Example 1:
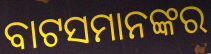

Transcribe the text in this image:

ବାଟସମାନଙ୍କର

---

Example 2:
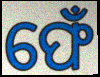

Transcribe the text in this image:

ଫେଁ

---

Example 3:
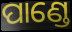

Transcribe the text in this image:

ପାଣ୍ଡେ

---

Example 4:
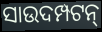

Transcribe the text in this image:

ସାଉଦମ୍ପଟନ୍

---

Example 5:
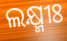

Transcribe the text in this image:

ଲକ୍ଷ୍ମୀଃ